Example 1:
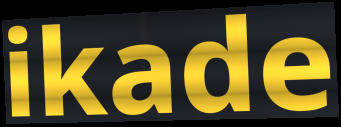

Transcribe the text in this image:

ikade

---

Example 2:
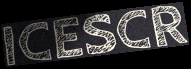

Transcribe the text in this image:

ICESCR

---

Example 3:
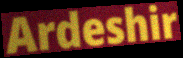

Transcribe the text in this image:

Ardeshir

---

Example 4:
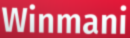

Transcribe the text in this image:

Winmani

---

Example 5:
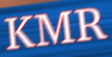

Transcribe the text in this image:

KMR